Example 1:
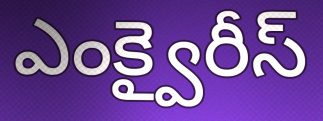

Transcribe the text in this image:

ఎంక్వైరీస్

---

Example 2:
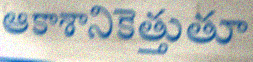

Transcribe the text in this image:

ఆకాశానికెత్తుతూ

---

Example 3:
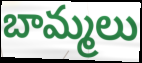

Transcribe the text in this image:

బామ్మలు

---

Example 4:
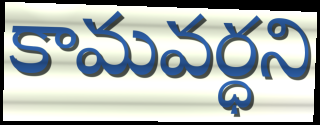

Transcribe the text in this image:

కామవర్ధని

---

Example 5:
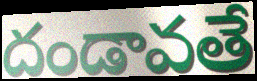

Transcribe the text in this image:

దండావతే